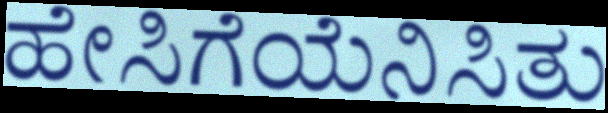
ಹೇಸಿಗೆಯೆನಿಸಿತು